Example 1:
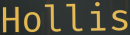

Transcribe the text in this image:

Hollis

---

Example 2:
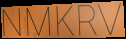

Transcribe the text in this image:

NMKRV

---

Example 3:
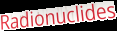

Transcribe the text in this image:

Radionuclides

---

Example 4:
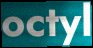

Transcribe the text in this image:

octyl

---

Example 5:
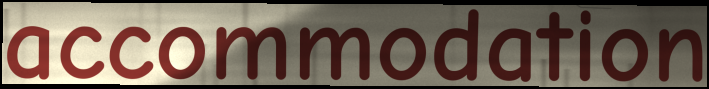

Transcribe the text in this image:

accommodation